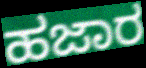
ಹಜಾರ